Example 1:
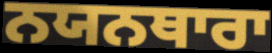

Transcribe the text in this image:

ਨਯਨਥਾਰਾ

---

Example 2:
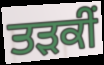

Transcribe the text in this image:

ਤੜਕੀਂ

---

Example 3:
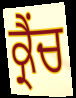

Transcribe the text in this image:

ਕ੍ਰੈਂਚ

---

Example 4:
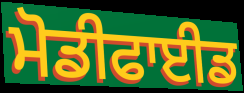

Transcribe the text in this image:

ਮੋਡੀਫਾਈਡ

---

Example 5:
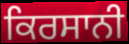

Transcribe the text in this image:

ਕਿਰਸਾਨੀ